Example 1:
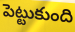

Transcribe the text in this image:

పెట్టుకుంది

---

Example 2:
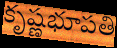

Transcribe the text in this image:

కృష్ణభూపతి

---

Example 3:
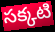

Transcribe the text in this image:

సక్కటి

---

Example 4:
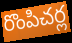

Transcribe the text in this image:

రొంపిచర్ల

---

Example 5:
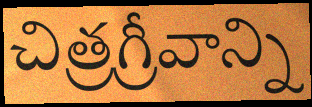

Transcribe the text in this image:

చిత్రగ్రీవాన్ని